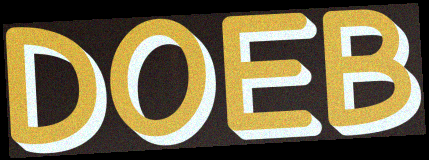
DOEB